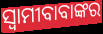
ସ୍ଵାମୀବାବାଙ୍କର